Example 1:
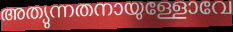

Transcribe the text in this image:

അത്യുന്നതനായുള്ളോവേ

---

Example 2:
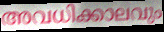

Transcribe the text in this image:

അവധിക്കാലവും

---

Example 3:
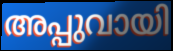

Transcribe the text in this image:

അപ്പുവായി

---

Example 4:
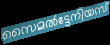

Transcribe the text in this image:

സൈമൽട്ടേനിയസ്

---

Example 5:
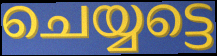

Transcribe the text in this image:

ചെയ്യട്ടെ